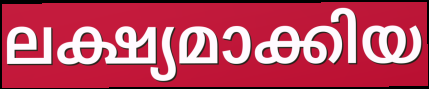
ലക്ഷ്യമാക്കിയ